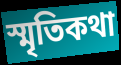
স্মৃতিকথা